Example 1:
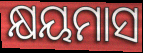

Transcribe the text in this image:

କ୍ଷୟମାସ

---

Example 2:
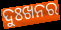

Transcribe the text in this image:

ଦୁଃଖନର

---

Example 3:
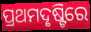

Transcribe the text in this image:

ପ୍ରଥମଦୃଷ୍ଟିରେ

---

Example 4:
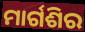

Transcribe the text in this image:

ମାର୍ଗଶିର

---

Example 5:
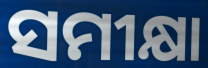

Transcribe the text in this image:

ସମୀକ୍ଷା